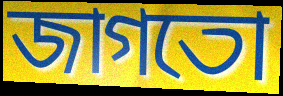
জাগতো